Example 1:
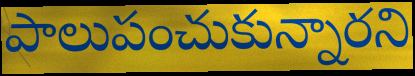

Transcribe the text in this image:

పాలుపంచుకున్నారని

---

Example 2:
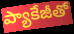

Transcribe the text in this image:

ప్యాకేజీతో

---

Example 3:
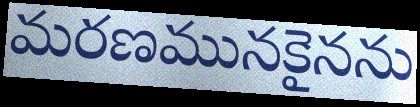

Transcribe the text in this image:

మరణమునకైనను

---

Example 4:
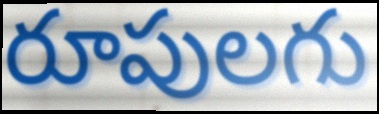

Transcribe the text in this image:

రూపులగు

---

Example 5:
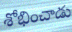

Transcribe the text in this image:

శోభించాడు